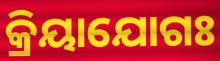
କ୍ରିୟାଯୋଗଃ